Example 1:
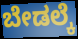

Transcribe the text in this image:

ಬೇಡಲ್ಕೆ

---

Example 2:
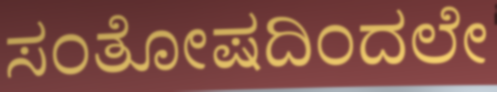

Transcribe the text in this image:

ಸಂತೋಷದಿಂದಲೇ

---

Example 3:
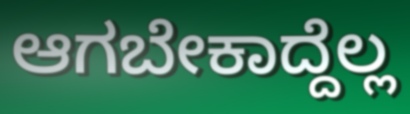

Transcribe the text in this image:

ಆಗಬೇಕಾದ್ದೆಲ್ಲ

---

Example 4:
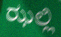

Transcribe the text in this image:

ಝಲ್ಲಿ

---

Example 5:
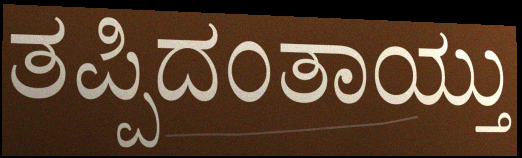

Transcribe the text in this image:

ತಪ್ಪಿದಂತಾಯ್ತು